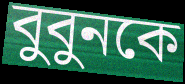
বুবুনকে